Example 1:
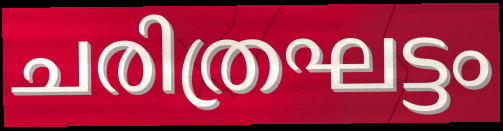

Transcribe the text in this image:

ചരിത്രഘട്ടം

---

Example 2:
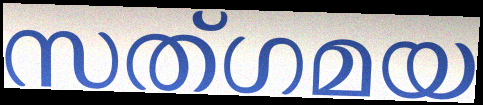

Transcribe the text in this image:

സത്ഗമയ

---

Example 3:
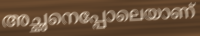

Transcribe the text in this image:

അച്ഛനെപ്പോലെയാണ്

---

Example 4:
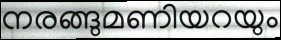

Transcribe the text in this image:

നരങ്ങുമണിയറയും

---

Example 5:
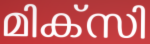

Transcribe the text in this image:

മിക്‌സി